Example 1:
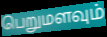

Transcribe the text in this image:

பெறுமளவும்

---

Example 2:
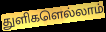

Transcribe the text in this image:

துளிகளெல்லாம்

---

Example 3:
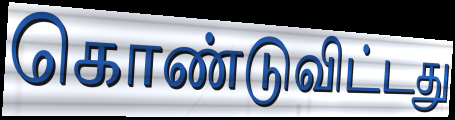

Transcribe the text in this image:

கொண்டுவிட்டது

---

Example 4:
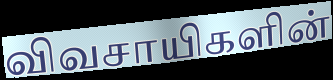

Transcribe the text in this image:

விவசாயிகளின்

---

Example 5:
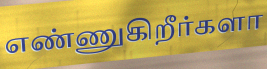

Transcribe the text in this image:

எண்ணுகிறீர்களா